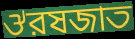
ঔরষজাত